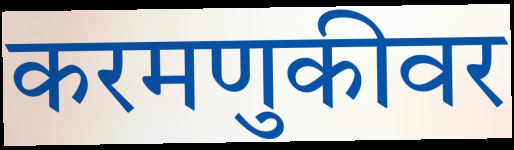
करमणुकीवर